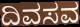
ದಿವಸವ